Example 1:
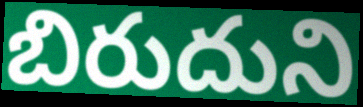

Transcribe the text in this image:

బిరుదుని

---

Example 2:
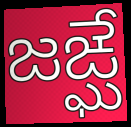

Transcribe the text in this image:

జఙ్ఘే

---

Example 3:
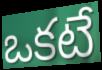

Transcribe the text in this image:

ఒకటే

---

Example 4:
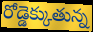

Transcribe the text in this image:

రోడ్డెక్కుతున్న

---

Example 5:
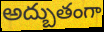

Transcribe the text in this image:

అద్బుతంగా